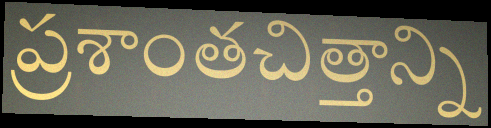
ప్రశాంతచిత్తాన్ని